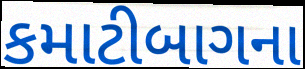
કમાટીબાગના